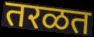
तरळत